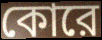
কোরে